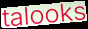
talooks